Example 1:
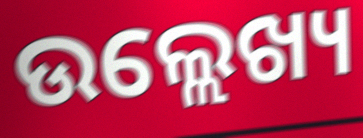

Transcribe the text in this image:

ଉଲ୍ଲେଖ୍ୟ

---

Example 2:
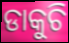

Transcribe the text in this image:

ଡାକୁଚି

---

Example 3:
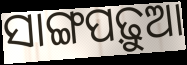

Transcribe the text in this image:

ସାଙ୍ଗପଢ଼ୁଆ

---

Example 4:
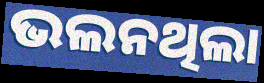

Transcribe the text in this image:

ଭଲନଥିଲା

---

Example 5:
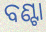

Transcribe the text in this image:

ବଣ୍ଟା